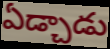
ఏడ్చాడు